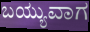
ಬಯ್ಯುವಾಗ